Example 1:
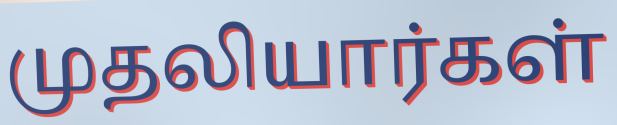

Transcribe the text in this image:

முதலியார்கள்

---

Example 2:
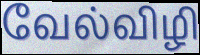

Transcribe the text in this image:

வேல்விழி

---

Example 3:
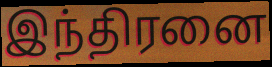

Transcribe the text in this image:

இந்திரனை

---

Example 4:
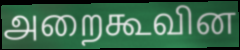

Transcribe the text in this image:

அறைகூவின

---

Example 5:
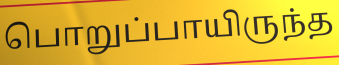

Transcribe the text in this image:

பொறுப்பாயிருந்த